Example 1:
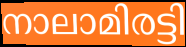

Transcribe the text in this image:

നാലാമിരട്ടി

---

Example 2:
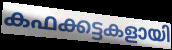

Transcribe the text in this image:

കഫക്കട്ടകളായി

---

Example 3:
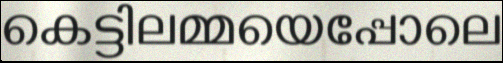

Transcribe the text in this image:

കെട്ടിലമ്മയെപ്പോലെ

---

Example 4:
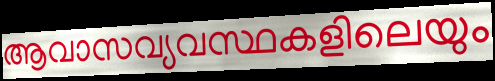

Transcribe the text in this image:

ആവാസവ്യവസ്ഥകളിലെയും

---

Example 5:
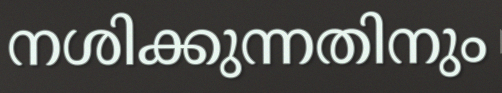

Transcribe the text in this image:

നശിക്കുന്നതിനും